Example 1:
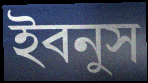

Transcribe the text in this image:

ইবনুস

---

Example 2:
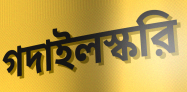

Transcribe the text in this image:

গদাইলস্করি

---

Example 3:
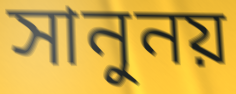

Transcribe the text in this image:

সানুনয়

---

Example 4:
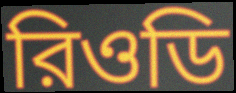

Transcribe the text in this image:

রিওডি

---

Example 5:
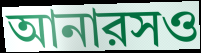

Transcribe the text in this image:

আনারসও